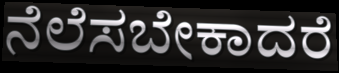
ನೆಲೆಸಬೇಕಾದರೆ